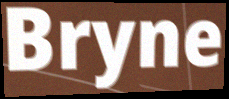
Bryne